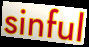
sinful